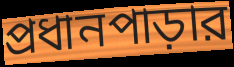
প্রধানপাড়ার